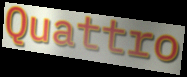
Quattro